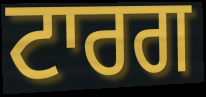
ਟਾਰਗ